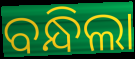
ବନ୍ଧିଲା